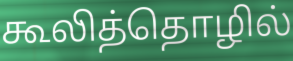
கூலித்தொழில்